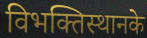
विभक्तिस्थानके